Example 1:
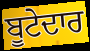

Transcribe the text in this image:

ਬੂਟੇਦਾਰ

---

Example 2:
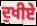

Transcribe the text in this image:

ਦੁਖੀਏ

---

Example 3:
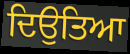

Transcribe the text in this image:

ਦਿਉਤਿਆ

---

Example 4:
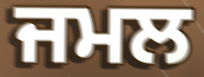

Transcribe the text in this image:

ਜਮਲ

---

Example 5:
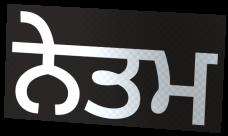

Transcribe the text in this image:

ਨੇਤਮ